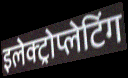
इलेक्ट्रोप्लेटिंग